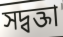
সদ্বক্তা